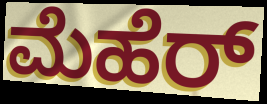
ಮೆಹೆರ್